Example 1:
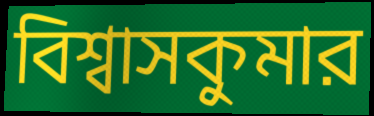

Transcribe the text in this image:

বিশ্বাসকুমার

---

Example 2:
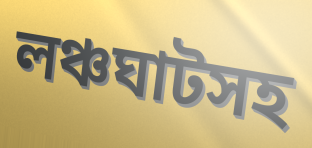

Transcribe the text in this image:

লঞ্চঘাটসহ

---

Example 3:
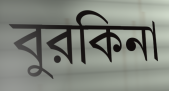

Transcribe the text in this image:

বুরকিনা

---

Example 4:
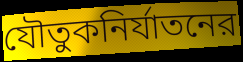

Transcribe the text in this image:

যৌতুকনির্যাতনের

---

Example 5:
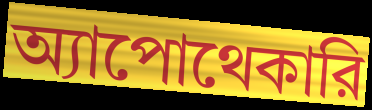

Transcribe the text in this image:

অ্যাপোথেকারি